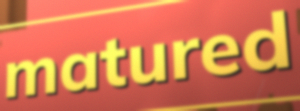
matured